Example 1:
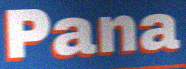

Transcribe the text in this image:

Pana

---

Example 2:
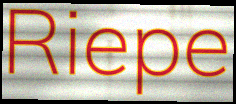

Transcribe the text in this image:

Riepe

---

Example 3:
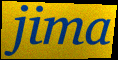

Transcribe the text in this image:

jima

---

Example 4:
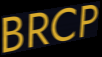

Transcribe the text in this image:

BRCP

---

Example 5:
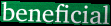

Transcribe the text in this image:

beneficial